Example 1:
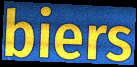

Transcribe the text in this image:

biers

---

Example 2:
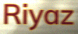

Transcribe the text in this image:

Riyaz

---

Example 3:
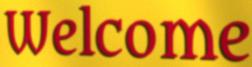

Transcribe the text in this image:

Welcome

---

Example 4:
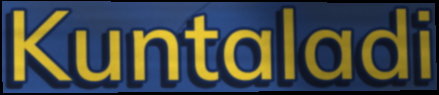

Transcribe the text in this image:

Kuntaladi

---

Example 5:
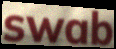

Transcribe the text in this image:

swab